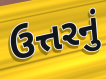
ઉત્તરનું